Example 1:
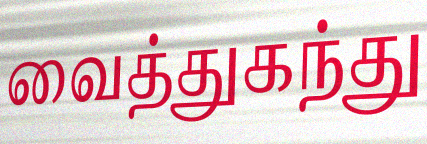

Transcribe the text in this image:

வைத்துகந்து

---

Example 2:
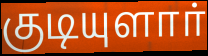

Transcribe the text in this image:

குடியுளார்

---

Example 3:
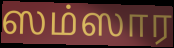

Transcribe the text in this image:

ஸம்ஸார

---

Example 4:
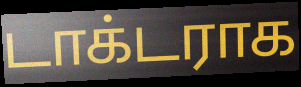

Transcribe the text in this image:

டாக்டராக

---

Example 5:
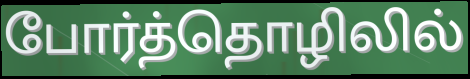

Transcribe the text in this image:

போர்த்தொழிலில்